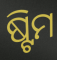
ଷ୍ଟିମ